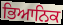
ਭਿਆਨਿਕ